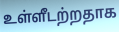
உள்ளீடற்றதாக